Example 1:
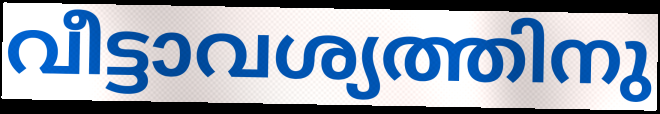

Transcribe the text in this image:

വീട്ടാവശ്യത്തിനു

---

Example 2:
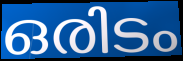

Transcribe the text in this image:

ഒരിടം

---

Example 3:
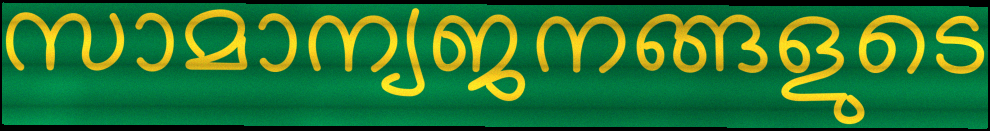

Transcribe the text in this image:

സാമാന്യജനങ്ങളുടെ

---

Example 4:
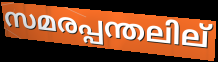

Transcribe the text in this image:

സമരപ്പന്തലില്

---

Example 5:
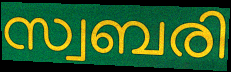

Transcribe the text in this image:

സ്വബരി